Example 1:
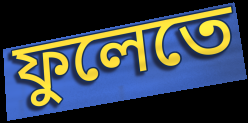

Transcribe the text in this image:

ফুলেতে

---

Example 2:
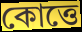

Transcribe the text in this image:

কোত্তে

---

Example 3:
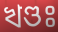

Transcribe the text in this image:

খণ্ডঃ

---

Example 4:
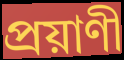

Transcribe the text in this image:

প্রয়াণী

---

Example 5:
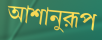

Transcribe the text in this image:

আশানুরূপ